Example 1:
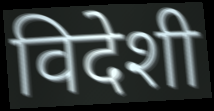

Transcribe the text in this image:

विदेशी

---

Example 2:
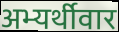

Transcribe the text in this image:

अभ्यर्थीवार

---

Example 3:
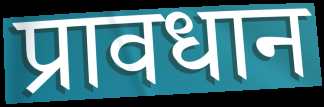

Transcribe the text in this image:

प्रावधान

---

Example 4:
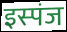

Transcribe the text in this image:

इस्पंज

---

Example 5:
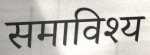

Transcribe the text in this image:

समाविश्य